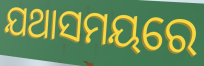
ଯଥାସମୟରେ